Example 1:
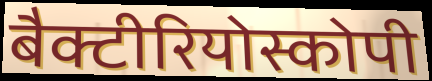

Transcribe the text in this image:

बैक्टीरियोस्कोपी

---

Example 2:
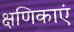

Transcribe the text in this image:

क्षणिकाएं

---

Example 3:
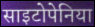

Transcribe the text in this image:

साइटोपेनिया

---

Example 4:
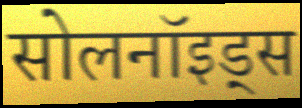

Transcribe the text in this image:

सोलनॉइड्स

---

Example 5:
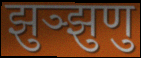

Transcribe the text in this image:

झुञ्झुणु